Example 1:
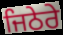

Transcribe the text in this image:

ਜਿਠੇਰੇ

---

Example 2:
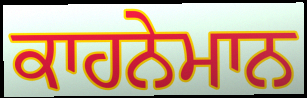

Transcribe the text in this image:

ਕਾਹਨੇਮਾਨ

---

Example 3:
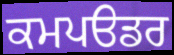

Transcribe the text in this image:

ਕਮਪੳਡਰ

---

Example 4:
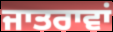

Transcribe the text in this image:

ਜਾਤਰਾਵਾਂ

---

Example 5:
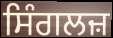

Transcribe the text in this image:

ਸਿੰਗਲਜ਼